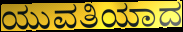
ಯುವತಿಯಾದ